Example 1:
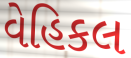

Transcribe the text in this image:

વેહિકલ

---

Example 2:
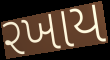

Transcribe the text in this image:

રખાય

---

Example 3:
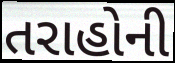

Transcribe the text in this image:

તરાહોની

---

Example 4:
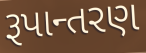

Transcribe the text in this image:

રૂપાન્તરણ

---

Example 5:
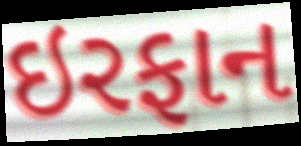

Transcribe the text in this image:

ઇરફાન